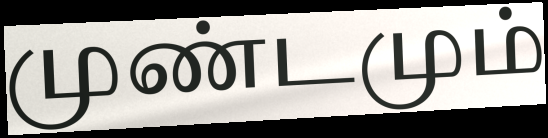
முண்டமும்